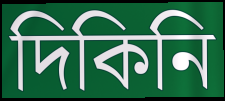
দিকিনি